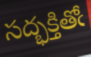
సద్భక్తితోఁ